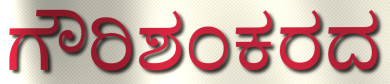
ಗೌರಿಶಂಕರದ